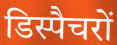
डिस्पैचरों